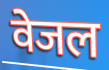
वेजल